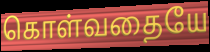
கொள்வதையே